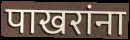
पाखरांना